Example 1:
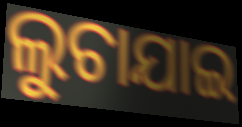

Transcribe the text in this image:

ଲୁଚାଯାଇ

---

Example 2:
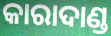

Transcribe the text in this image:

କାରାଦାଣ୍ଡ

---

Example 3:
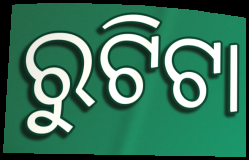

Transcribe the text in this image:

ରୁଟିଟା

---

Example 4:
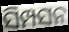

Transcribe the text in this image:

ସିମ୍ପସନ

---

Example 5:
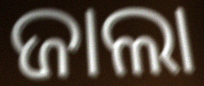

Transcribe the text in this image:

ଜାଲା